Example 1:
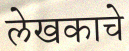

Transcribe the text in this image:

लेखकाचे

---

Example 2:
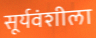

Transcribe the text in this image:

सूर्यवंशीला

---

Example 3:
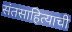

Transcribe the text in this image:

संतसाहित्याची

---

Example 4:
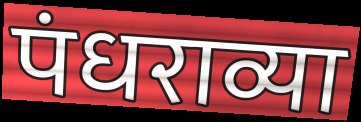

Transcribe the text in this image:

पंधराव्या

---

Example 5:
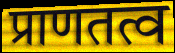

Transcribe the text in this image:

प्राणतत्व